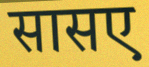
सासए